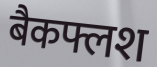
बैकफ्लश